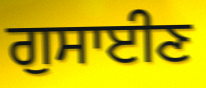
ਗੁਸਾਈਣ